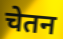
चेतन